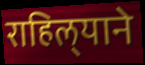
राहिल्याने